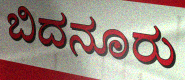
ಬಿದನೂರು